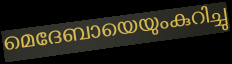
മെദേബായെയുംകുറിച്ചു